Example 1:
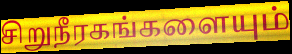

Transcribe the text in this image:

சிறுநீரகங்களையும்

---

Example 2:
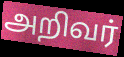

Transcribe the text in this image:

அறிவர்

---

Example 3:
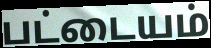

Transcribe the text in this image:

பட்டையம்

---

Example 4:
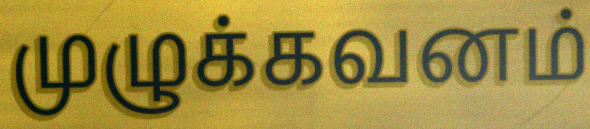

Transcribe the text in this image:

முழுக்கவனம்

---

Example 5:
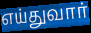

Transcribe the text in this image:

எய்துவார்